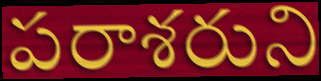
పరాశరుని